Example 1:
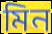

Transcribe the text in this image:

মিন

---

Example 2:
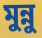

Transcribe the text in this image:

মুন্নু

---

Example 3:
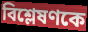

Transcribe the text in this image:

বিশ্লেষণকে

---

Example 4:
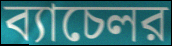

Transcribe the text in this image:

ব্যাচেলর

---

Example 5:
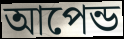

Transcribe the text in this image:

আপেন্ড